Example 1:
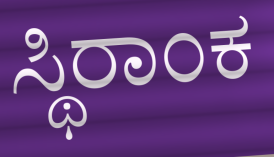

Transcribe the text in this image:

ಸ್ಥಿರಾಂಕ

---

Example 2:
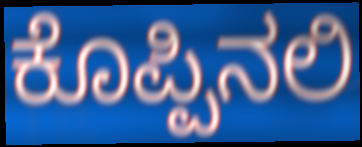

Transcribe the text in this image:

ಕೊಪ್ಪಿನಲಿ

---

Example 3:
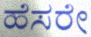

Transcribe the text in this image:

ಹೆಸರೇ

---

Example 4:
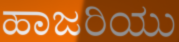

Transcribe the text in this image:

ಹಾಜರಿಯು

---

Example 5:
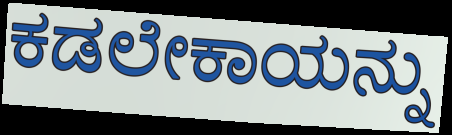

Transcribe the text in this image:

ಕಡಲೇಕಾಯನ್ನು